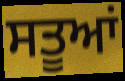
ਸਤੂਆਂ